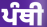
ਪੰਥੀ